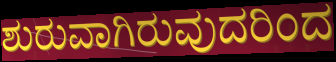
ಶುರುವಾಗಿರುವುದರಿಂದ